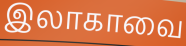
இலாகாவை